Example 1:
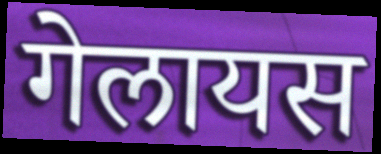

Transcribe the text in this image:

गेलायस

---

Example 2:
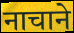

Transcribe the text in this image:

नाचाने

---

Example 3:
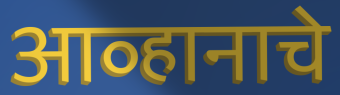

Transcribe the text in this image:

आव्हानाचे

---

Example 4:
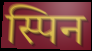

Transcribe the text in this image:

स्पिन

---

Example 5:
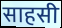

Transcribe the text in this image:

साहसी